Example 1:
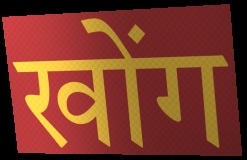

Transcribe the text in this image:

खोंग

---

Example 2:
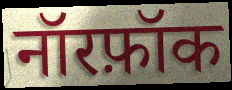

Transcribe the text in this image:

नॉरफ़ॉक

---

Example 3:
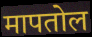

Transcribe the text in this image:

मापतोल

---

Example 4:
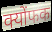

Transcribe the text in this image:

क्योंफक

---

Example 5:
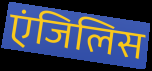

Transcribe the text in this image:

एंजिलिस